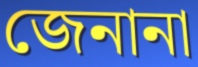
জেনানা